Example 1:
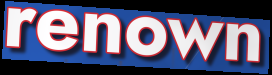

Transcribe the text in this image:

renown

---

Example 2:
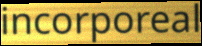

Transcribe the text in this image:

incorporeal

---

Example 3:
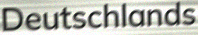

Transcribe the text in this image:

Deutschlands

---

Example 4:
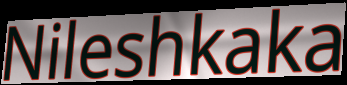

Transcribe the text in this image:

Nileshkaka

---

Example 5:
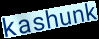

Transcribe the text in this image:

kashunk